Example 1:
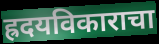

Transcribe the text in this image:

ह्रदयविकाराचा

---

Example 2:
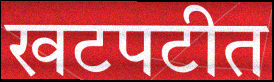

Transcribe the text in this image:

खटपटीत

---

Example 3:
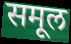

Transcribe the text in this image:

समूल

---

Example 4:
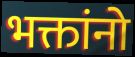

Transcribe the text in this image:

भक्तांनो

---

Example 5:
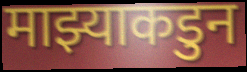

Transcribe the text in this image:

माझ्याकडुन